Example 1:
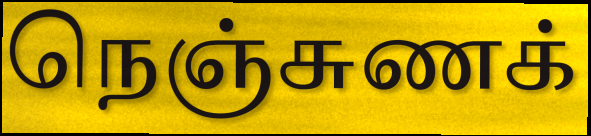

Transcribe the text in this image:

நெஞ்சுணக்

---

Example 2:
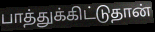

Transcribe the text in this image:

பாத்துக்கிட்டுதான்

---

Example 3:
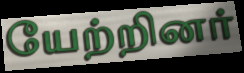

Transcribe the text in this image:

யேற்றினர்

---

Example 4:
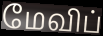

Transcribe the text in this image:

மேவிப்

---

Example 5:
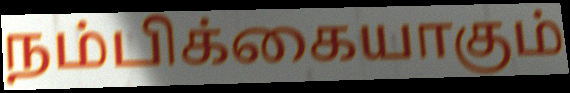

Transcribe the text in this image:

நம்பிக்கையாகும்